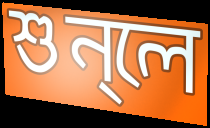
শুন্‌লে